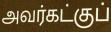
அவர்கட்குப்